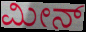
ಮೀನ್